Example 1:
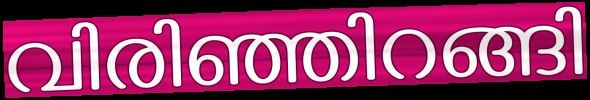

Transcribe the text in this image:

വിരിഞ്ഞിറങ്ങി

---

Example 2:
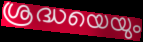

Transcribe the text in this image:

ശ്രദ്ധയെയും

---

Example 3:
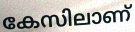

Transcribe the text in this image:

കേസിലാണ്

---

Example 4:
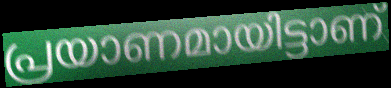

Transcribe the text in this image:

പ്രയാണമായിട്ടാണ്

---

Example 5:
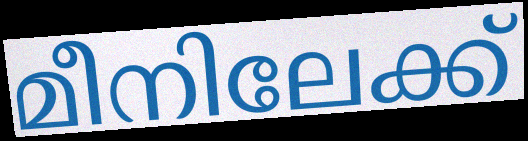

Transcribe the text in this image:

മീനിലേക്ക്